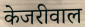
केजरीवाल